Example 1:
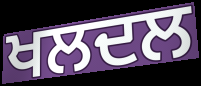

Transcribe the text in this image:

ਖਲਦਲ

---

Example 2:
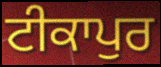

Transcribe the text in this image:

ਟੀਕਾਪੁਰ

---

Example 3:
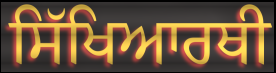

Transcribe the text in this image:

ਸਿੱਖਿਆਰਥੀ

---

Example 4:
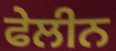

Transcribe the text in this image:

ਫੇਲੀਨ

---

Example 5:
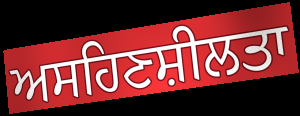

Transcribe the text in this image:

ਅਸਹਿਣਸ਼ੀਲਤਾ